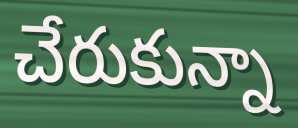
చేరుకున్నా